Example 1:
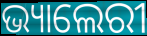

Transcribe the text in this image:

ଭ୍ୟାଲେରୀ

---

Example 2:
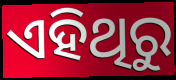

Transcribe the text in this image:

ଏହିଥିରୁ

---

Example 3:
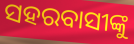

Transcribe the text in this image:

ସହରବାସୀଙ୍କୁ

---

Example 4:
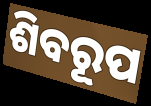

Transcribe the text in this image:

ଶିବରୂପ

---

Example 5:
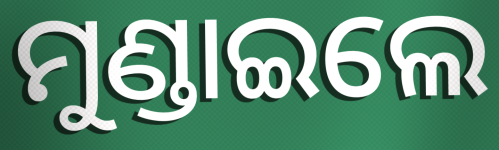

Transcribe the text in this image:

ମୁଣ୍ଡାଇଲେ